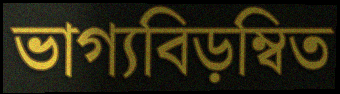
ভাগ্যবিড়ম্বিত